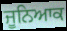
ਜੂਨਿਆਕ